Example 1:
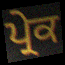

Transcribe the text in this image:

ਪ੍ਰੇਕ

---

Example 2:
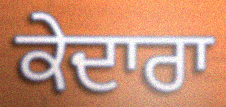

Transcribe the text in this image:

ਕੇਦਾਰਾ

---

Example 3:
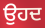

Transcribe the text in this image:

ਉਹਦ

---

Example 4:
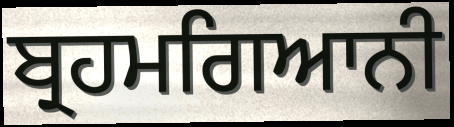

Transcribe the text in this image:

ਬ੍ਰਹਮਗਿਆਨੀ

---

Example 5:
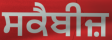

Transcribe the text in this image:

ਸਕੈਬੀਜ਼